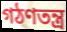
গঠণতন্ত্র